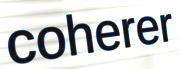
coherer